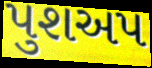
પુશઅપ